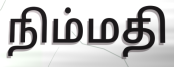
நிம்மதி